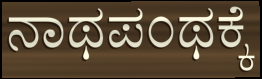
ನಾಥಪಂಥಕ್ಕೆ